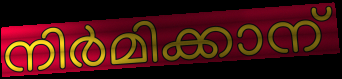
നിർമിക്കാന്